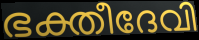
ഭക്തീദേവി